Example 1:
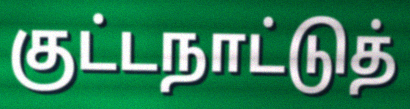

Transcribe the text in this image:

குட்டநாட்டுத்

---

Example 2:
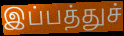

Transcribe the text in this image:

இப்பத்துச்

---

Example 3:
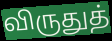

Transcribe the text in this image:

விருதுத்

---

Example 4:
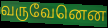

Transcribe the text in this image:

வருவேனென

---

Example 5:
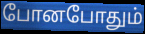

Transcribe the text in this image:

போனபோதும்